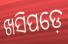
ଖସିପଡ଼େ